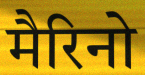
मैरिनो